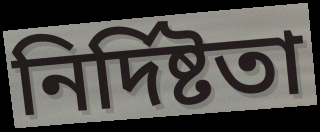
নিৰ্দিষ্টতা